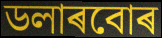
ডলাৰবোৰ